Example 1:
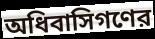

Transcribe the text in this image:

অধিবাসিগণের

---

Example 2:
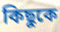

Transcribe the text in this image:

কিছুকে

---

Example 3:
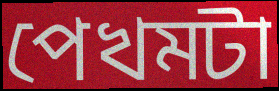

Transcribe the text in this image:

পেখমটা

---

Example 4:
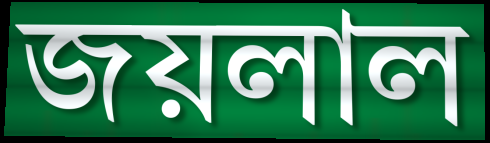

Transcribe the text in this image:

জয়লাল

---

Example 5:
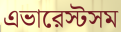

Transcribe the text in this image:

এভারেস্টসম